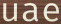
uae